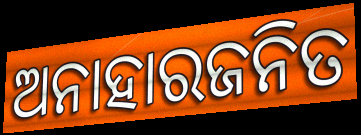
ଅନାହାରଜନିତ